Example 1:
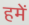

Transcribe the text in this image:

हमें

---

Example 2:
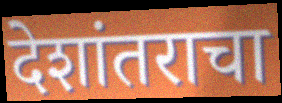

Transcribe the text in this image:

देशांतराचा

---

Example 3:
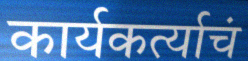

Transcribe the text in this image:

कार्यकर्त्याचं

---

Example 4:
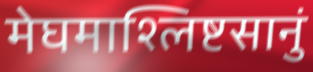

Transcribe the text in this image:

मेघमाश्लिष्टसानुं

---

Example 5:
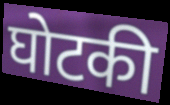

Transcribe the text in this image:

घोटकी